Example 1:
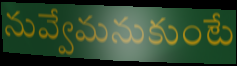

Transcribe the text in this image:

నువ్వేమనుకుంటే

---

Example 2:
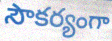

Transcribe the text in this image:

సౌకర్యంగా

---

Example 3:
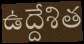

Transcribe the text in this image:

ఉద్దేశిత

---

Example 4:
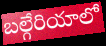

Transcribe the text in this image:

బల్గేరియాలో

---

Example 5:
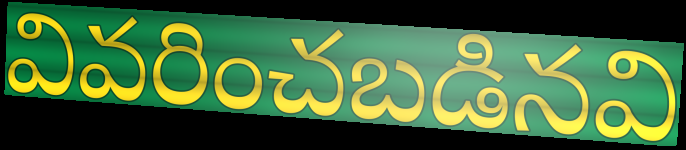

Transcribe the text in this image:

వివరించబడినవి